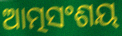
ଆତ୍ମସଂଶୟ